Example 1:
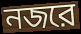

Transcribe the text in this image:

নজরে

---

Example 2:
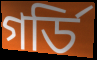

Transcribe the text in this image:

গর্ডি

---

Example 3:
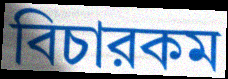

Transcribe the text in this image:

বিচারকম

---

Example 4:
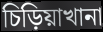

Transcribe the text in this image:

চিড়িয়াখানা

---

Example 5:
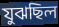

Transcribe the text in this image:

যুঝছিল